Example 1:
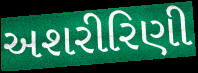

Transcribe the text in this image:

અશરીરિણી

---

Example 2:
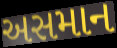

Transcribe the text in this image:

અસમાન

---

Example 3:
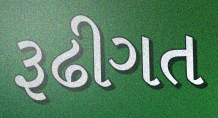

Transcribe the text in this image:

રૂઢીગત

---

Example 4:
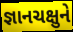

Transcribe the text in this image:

જ્ઞાનચક્ષુને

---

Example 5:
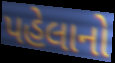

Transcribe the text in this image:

પહેલાનો